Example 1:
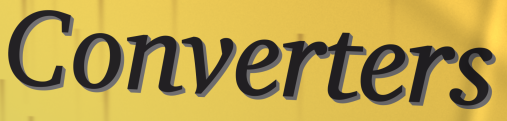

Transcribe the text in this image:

Converters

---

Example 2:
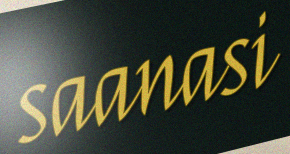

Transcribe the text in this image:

saanasi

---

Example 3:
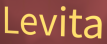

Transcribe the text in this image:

Levita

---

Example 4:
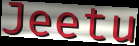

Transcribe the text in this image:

Jeetu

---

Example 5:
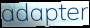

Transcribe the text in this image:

adapter